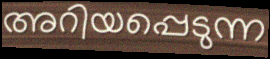
അറിയപ്പെടുന്ന